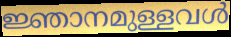
ജ്ഞാനമുള്ളവൾ